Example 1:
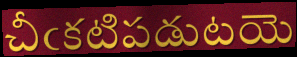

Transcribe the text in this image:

చీఁకటిపడుటయె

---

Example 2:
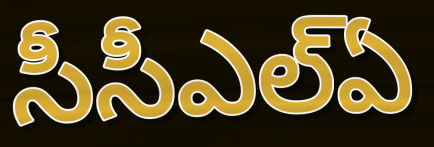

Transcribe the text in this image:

సీసీఎల్ఏ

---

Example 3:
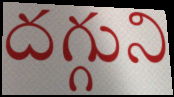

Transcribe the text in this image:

దగ్గుని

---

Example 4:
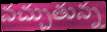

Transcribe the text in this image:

నచ్చుతున్న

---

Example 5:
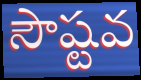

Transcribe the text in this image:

సౌష్టవ